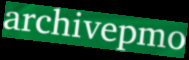
archivepmo